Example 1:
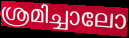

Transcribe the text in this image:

ശ്രമിച്ചാലോ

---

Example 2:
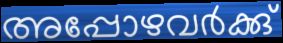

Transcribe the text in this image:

അപ്പോഴവർക്കു്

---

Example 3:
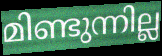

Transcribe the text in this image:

മിണ്ടുന്നില്ല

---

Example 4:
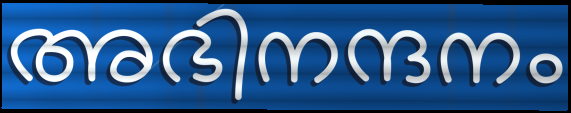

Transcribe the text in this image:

അഭിനന്ദനം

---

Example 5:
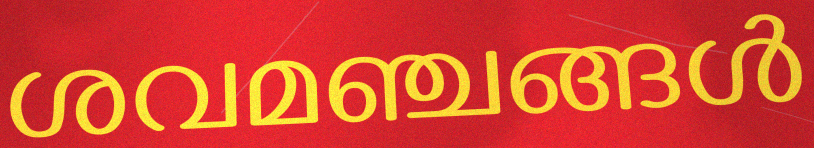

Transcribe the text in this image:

ശവമഞ്ചങ്ങൾ